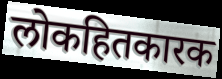
लोकहितकारक